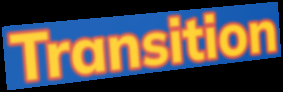
Transition